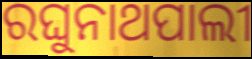
ରଘୁନାଥପାଲୀ